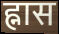
ह्नास